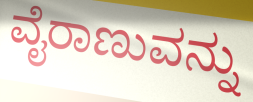
ವೈರಾಣುವನ್ನು